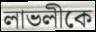
লাভলীকে